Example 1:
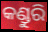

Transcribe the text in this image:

କଣ୍ଡୁରି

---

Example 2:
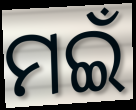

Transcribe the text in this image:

ମଇଁ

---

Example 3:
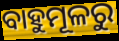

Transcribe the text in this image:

ବାହୁମୂଳରୁ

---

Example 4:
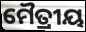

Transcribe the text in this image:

ମୈତ୍ରୀୟ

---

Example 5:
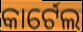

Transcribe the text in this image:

କାର୍ଟେଲ